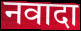
नवादा